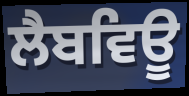
ਲੈਬਵਿਊ